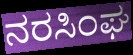
ನರಸಿಂಘ